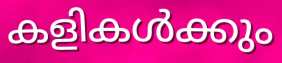
കളികൾക്കും